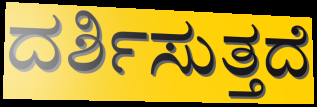
ದರ್ಶಿಸುತ್ತದೆ